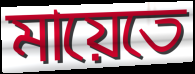
মায়েতে